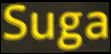
Suga